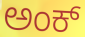
ಅಂಕ್